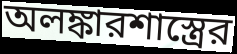
অলঙ্কারশাস্ত্রের